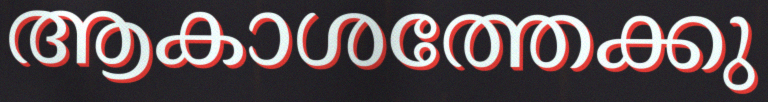
ആകാശത്തേക്കു